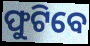
ଫୁଟିବେ